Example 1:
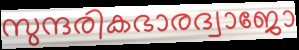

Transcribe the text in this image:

സുന്ദരികഭാരദ്വാജോ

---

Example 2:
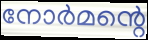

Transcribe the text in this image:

നോർമന്റെ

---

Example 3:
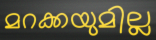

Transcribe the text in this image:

മറക്കയുമില്ല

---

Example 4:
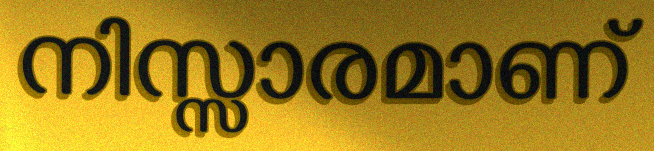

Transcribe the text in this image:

നിസ്സാരമാണ്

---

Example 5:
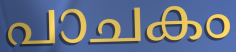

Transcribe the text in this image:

പാചകം